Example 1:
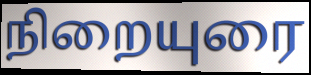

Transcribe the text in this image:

நிறையுரை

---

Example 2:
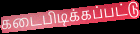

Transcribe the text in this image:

கடைபிடிக்கப்பட்டு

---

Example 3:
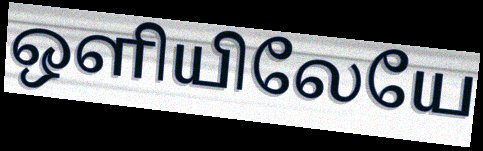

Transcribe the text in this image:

ஒளியிலேயே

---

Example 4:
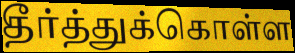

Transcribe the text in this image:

தீர்த்துக்கொள்ள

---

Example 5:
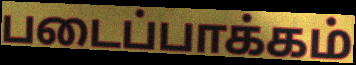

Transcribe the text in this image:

படைப்பாக்கம்